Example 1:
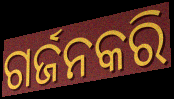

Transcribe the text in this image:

ଗର୍ଜନକରି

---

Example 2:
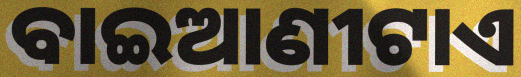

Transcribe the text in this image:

ବାଇଆଣୀଟାଏ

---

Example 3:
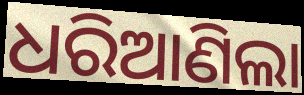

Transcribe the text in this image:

ଧରିଆଣିଲା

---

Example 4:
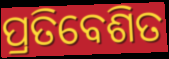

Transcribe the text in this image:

ପ୍ରତିବେଶିତ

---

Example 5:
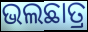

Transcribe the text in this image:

ଭଲଛାତ୍ର